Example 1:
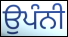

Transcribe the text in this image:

ਉਪੰਨੀ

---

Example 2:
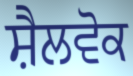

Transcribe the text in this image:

ਸ਼ੈਲਵੋਕ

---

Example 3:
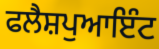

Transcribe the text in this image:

ਫਲੈਸ਼ਪੁਆਇੰਟ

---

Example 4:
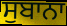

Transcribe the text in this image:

ਸੁਬਾਨਾ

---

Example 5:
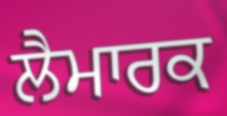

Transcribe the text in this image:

ਲੈਮਾਰਕ